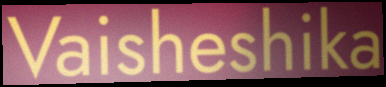
Vaisheshika